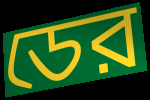
ডের